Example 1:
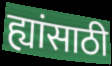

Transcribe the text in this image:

ह्यांसाठी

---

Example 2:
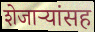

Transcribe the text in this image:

शेजाऱ्यांसह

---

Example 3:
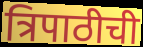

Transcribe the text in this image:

त्रिपाठीची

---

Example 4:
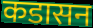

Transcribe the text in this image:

कडासन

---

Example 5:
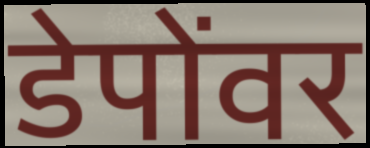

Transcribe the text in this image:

डेपोंवर